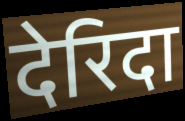
देरिदा